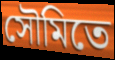
সৌমিতে